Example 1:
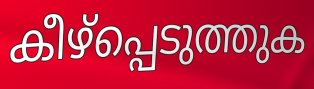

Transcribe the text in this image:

കീഴ്പ്പെടുത്തുക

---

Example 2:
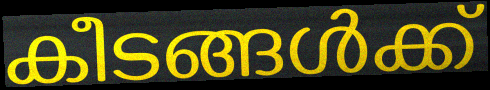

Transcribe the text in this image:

കീടങ്ങൾക്ക്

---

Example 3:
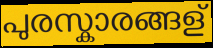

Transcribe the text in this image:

പുരസ്കാരങ്ങള്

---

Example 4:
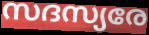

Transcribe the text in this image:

സദസ്യരേ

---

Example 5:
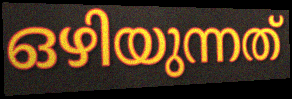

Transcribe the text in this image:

ഒഴിയുന്നത്